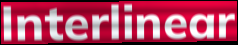
Interlinear